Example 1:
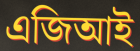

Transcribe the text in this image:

এজিআই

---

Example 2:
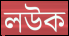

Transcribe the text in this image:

লউক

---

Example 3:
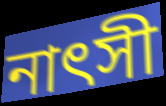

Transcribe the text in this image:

নাৎসী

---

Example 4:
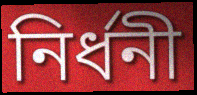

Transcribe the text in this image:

নির্ধনী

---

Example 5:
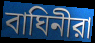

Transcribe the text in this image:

বাঘিনীরা